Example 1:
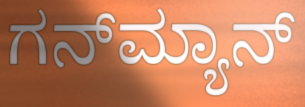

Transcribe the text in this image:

ಗನ್‌ಮ್ಯಾನ್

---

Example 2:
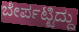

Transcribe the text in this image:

ಬೇರ್ಪಟ್ಟಿದ್ದು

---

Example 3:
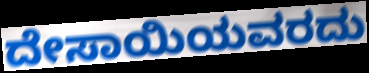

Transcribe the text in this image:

ದೇಸಾಯಿಯವರದು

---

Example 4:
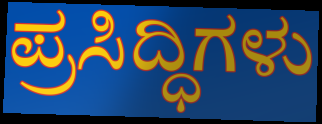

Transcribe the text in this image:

ಪ್ರಸಿದ್ಧಿಗಳು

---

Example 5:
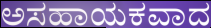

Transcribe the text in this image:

ಅಸಹಾಯಕವಾದ